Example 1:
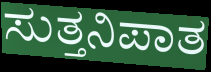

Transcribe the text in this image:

ಸುತ್ತನಿಪಾತ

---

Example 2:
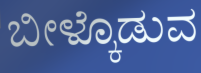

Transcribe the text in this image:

ಬೀಳ್ಕೊಡುವ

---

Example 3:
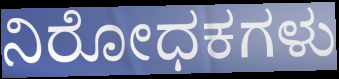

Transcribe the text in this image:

ನಿರೋಧಕಗಳು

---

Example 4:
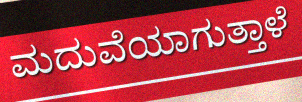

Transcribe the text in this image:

ಮದುವೆಯಾಗುತ್ತಾಳೆ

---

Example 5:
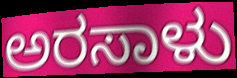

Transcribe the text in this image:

ಅರಸಾಳು